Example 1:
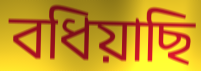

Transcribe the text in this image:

বধিয়াছি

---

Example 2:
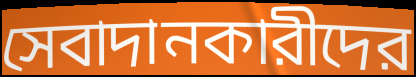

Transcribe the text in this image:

সেবাদানকারীদের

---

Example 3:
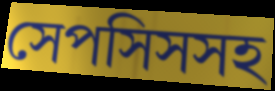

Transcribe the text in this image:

সেপসিসসহ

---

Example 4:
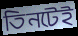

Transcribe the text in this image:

তিনটেই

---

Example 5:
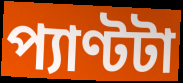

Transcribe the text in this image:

প্যাণ্টটা